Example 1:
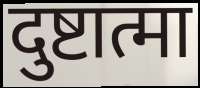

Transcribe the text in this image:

दुष्टात्मा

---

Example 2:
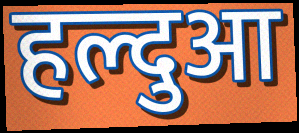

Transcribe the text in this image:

हल्दुआ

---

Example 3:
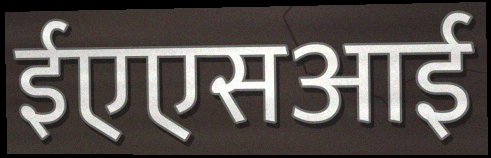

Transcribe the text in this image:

ईएएसआई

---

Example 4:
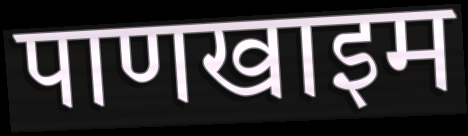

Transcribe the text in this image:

पाणखाइम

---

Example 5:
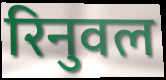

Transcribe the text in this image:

रिनुवल